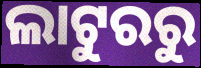
ଲାଟୁରରୁ